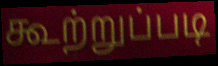
கூற்றுப்படி